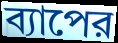
ব্যাপের